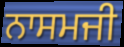
ਨਾਸਮਜੀ